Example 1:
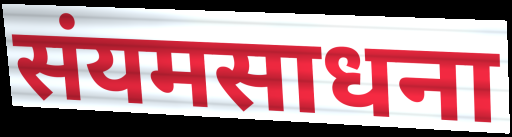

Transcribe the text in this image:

संयमसाधना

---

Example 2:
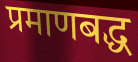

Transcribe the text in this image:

प्रमाणबद्ध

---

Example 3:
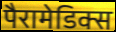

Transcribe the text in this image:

पैरामेडिक्स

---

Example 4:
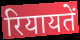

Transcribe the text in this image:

रियायतें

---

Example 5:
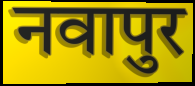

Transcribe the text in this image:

नवापुर